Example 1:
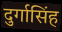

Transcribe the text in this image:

दुर्गासिंह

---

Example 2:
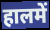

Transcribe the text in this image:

हालमें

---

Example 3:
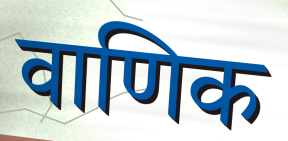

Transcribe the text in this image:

वाणिक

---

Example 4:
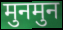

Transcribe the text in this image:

मुनमुन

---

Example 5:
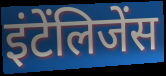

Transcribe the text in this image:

इंटेंलिजेंस